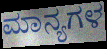
ಮಾನ್ಯಗಳ